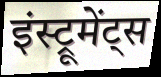
इंस्‍ट्रूमेंट्स